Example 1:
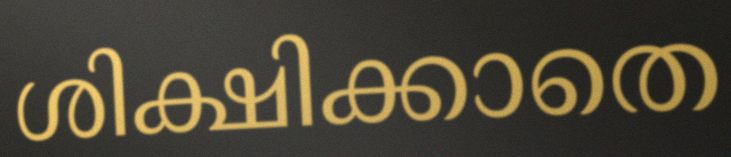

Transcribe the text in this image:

ശിക്ഷിക്കാതെ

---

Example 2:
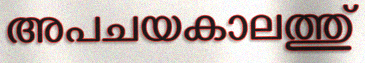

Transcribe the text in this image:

അപചയകാലത്തു്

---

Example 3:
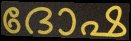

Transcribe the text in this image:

ദോഷ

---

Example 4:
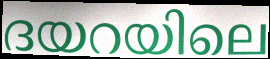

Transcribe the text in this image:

ദയറയിലെ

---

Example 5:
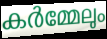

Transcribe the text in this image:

കർമ്മേലും